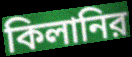
কিলানির